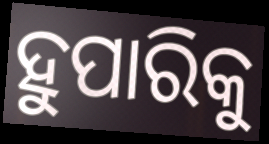
ହୁପାରିକୁ